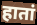
हातां